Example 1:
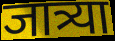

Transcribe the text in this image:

जात्र्या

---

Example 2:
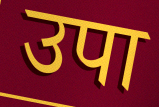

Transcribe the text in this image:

उपा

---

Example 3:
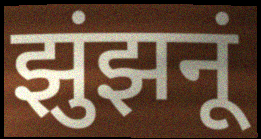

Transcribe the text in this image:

झुंझनूं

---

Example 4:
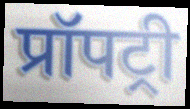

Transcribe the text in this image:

प्रॉपट्री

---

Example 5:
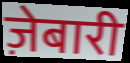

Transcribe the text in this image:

ज़ेबारी